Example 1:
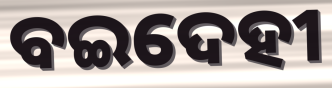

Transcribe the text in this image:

ବଇଦେହୀ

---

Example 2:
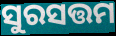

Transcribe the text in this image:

ସୁରସତ୍ତମ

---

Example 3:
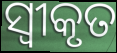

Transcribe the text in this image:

ସ୍ଵୀକୃତ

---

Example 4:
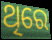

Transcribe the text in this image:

ଥିରେ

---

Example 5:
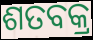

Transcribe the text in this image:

ଶତବକ୍ର